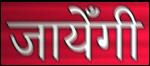
जायेँगी